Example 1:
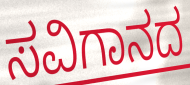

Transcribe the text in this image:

ಸವಿಗಾನದ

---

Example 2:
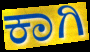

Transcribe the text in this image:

ಕಾಗಿ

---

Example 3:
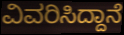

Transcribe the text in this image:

ವಿವರಿಸಿದ್ದಾನೆ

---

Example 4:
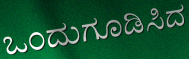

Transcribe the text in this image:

ಒಂದುಗೂಡಿಸಿದ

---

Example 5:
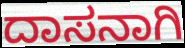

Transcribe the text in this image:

ದಾಸನಾಗಿ